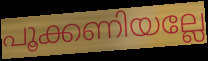
പൂക്കണിയല്ലേ